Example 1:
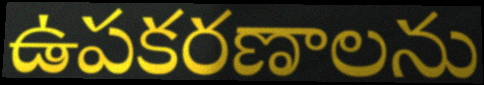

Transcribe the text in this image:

ఉపకరణాలను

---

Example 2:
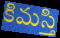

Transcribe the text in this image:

కిమస్తి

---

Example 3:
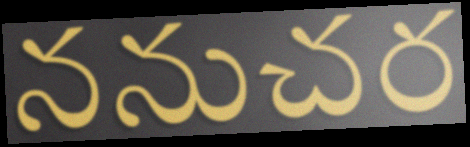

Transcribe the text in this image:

ననుచర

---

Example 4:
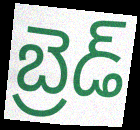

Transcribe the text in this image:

బ్రెడ్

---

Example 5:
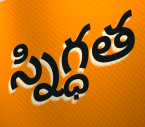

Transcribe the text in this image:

స్నిగ్ధత